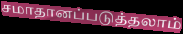
சமாதானப்படுத்தலாம்